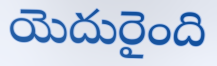
యెదురైంది